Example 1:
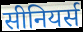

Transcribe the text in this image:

सीनियर्स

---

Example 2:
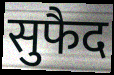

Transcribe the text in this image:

सुफैद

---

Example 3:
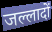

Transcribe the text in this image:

जल्लादों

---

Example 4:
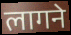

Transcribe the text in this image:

लागने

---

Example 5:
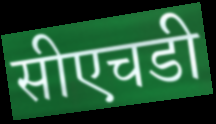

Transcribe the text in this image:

सीएचडी